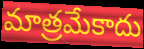
మాత్రమేకాదు